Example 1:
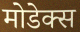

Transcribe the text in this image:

मोडेक्स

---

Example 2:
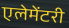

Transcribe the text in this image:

एलेमेंटरी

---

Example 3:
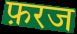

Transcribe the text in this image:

फ़रज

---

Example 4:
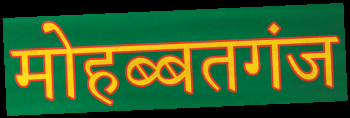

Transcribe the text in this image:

मोहब्बतगंज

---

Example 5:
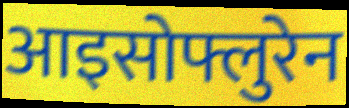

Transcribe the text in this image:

आइसोफ्लुरेन